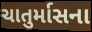
ચાતુર્માસના